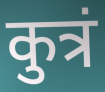
कुत्रं